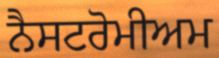
ਨੈਸਟਰੋਮੀਅਮ